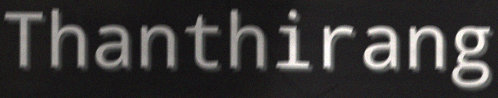
Thanthirang